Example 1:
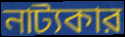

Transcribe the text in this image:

নাট্যকার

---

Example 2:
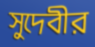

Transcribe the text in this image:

সুদেবীর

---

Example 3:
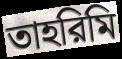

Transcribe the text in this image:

তাহরিমি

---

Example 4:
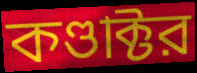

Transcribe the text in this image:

কণ্ডাক্টর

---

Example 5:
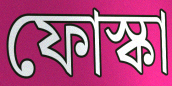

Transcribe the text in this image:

ফোস্কা